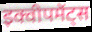
इक्वीपमेंट्स